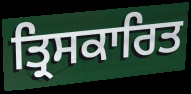
ਤ੍ਰਿਸਕਾਰਿਤ